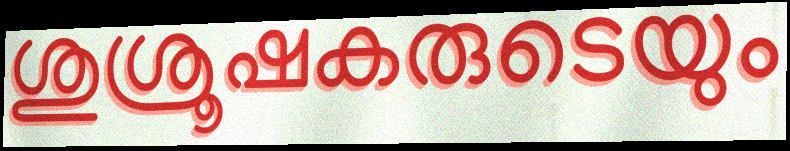
ശുശ്രൂഷകരുടെയും